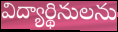
విద్యార్థినులను